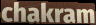
chakram